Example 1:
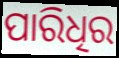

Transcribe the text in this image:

ପାରିଧିର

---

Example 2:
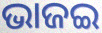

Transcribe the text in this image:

ଭାଜଇ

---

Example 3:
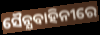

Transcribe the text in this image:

ସୈନ୍ଯବାହିନୀରେ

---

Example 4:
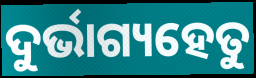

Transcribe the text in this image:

ଦୁର୍ଭାଗ୍ୟହେତୁ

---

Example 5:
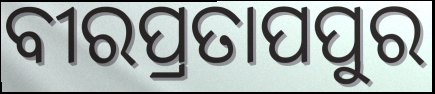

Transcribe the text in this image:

ବୀରପ୍ରତାପପୁର